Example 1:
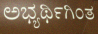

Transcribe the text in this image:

ಅಭ್ಯರ್ಥಿಗಿಂತ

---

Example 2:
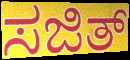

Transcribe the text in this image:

ಸಜಿತ್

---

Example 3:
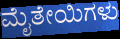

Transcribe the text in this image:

ಮೈತೇಯಿಗಳು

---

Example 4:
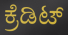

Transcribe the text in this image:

ಕ್ರೆಡಿಟ್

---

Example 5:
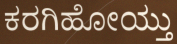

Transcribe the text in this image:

ಕರಗಿಹೋಯ್ತು